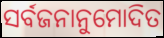
ସର୍ବଜନାନୁମୋଦିତ